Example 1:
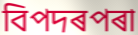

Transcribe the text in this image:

বিপদৰপৰা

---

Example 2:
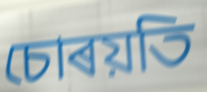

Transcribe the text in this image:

চোৰয়তি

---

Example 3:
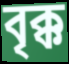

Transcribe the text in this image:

বৃক্ক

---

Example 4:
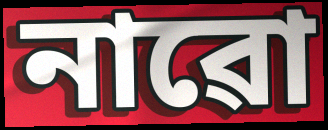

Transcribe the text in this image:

নাৱো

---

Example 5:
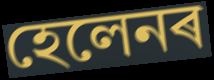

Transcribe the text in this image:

হেলেনৰ